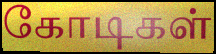
கோடிகள்